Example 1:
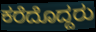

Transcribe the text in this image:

ಕರೆದೊದ್ದರು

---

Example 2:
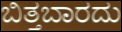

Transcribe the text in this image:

ಬಿತ್ತಬಾರದು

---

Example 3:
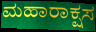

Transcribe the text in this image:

ಮಹಾರಾಕ್ಷಸ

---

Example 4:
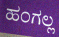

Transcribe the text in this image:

ಹಂಗಲ್ಲ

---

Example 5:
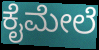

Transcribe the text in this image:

ಕೈಮೇಲೆ